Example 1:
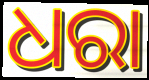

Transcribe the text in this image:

ଧରା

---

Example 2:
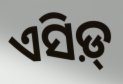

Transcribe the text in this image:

ଏସିଡ଼୍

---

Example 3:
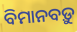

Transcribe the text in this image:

ବିମାନବଡ଼ୁ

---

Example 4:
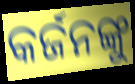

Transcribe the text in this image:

କର୍ଜନଙ୍କୁ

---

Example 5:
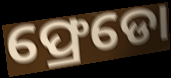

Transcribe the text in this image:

ଫ୍ରେଡୋ